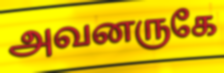
அவனருகே